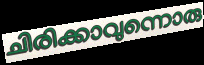
ചിരിക്കാവുന്നൊരു